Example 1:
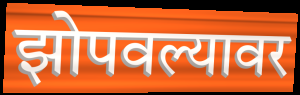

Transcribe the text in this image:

झोपवल्यावर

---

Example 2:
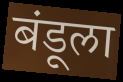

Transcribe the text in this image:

बंडूला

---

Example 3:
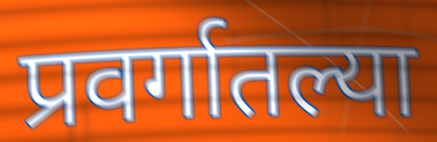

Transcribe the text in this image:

प्रवर्गातल्या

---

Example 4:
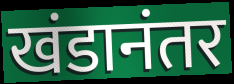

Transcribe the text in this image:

खंडानंतर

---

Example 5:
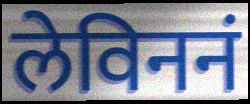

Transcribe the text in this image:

लेविननं